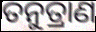
ତନୁତ୍ରାଣ